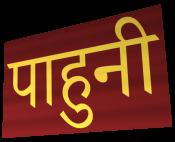
पाहुनी